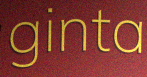
ginta